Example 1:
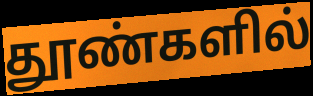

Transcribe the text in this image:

தூண்களில்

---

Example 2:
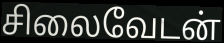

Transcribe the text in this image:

சிலைவேடன்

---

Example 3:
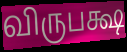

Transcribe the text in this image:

விருபக்ஷ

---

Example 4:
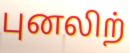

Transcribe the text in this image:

புனலிற்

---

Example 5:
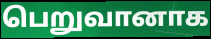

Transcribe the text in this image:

பெறுவானாக